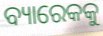
ବ୍ୟାରେକକୁ